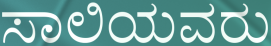
ಸಾಲಿಯವರು